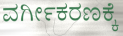
ವರ್ಗೀಕರಣಕ್ಕೆ